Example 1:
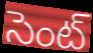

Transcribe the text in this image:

సెంట్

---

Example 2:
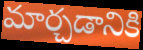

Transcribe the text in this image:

మార్చడానికి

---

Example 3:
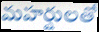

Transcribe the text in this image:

మహర్షులతో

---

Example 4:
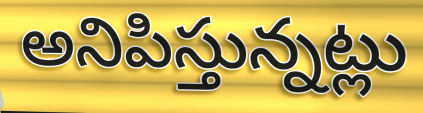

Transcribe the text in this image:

అనిపిస్తున్నట్లు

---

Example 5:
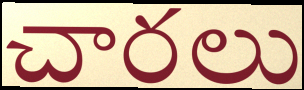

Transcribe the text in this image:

చారలు